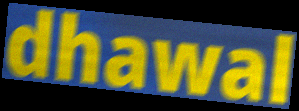
dhawal